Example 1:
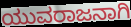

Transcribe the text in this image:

ಯುವರಾಜನಾಗಿ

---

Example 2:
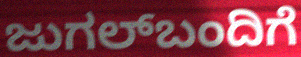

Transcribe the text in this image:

ಜುಗಲ್‌ಬಂದಿಗೆ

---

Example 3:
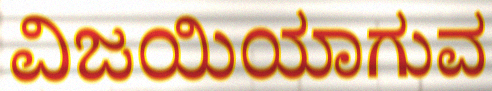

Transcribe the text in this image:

ವಿಜಯಿಯಾಗುವ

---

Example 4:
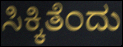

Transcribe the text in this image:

ಸಿಕ್ಕಿತೆಂದು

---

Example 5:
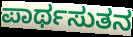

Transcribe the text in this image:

ಪಾರ್ಥಸುತನ